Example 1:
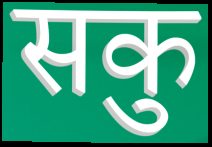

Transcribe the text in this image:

सकु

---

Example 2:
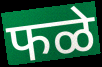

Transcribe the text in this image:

फळे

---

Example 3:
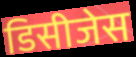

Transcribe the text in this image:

डिसीजेस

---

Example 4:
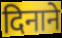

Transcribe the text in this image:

दिनाने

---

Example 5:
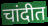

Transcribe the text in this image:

चांदीत